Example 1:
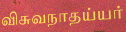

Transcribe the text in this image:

விசுவநாதய்யர்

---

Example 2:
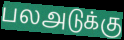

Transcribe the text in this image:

பலஅடுக்கு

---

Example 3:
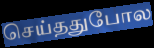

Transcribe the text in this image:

செய்ததுபோல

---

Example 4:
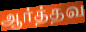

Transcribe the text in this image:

ஆர்த்தவ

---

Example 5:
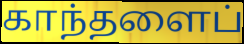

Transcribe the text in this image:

காந்தளைப்